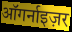
ऑगर्नाइज़र